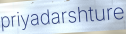
priyadarshture